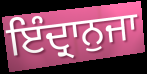
ਇੰਦ੍ਰਾਨੁਜਾ